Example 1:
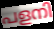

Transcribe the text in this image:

പളനി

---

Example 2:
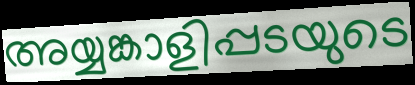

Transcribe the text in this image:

അയ്യങ്കാളിപ്പടയുടെ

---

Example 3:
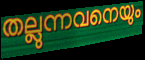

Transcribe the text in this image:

തല്ലുന്നവനെയും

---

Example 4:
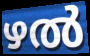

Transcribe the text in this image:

ഴൽ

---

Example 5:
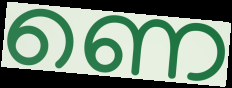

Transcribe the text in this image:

ണെ